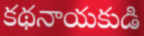
కథనాయకుడి